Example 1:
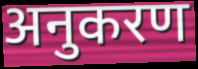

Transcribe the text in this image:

अनुकरण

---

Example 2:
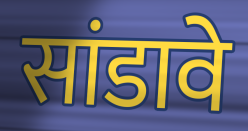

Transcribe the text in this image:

सांडावे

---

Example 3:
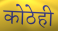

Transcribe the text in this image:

कोठेही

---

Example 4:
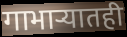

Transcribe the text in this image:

गाभाऱ्यातही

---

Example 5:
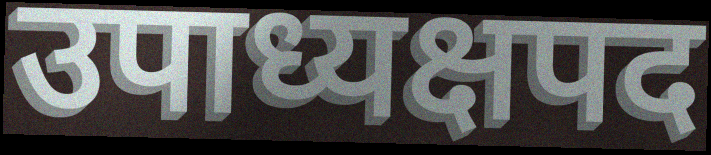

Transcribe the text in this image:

उपाध्यक्षपद